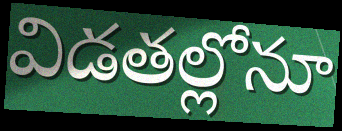
విడతల్లోనూ